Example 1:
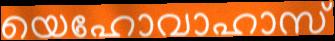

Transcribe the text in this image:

യെഹോവാഹാസ്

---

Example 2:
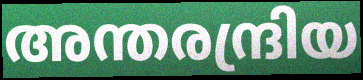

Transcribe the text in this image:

അന്തരന്ദ്രിയ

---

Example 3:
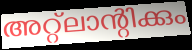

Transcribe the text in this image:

അറ്റ്ലാന്റിക്കും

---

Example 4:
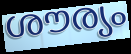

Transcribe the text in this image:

ശൗര്യം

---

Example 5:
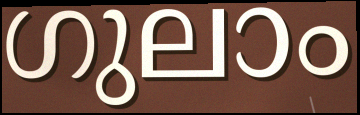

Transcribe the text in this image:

ഗുലാം